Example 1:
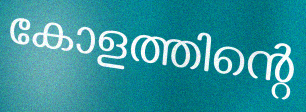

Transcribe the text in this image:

കോളത്തിന്റെ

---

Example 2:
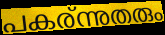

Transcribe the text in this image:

പകര്ന്നുതരും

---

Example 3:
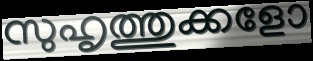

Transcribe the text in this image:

സുഹൃത്തുക്കളോ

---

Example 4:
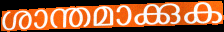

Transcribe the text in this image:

ശാന്തമാക്കുക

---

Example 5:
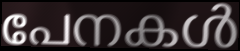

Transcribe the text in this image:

പേനകൾ